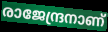
രാജേന്ദ്രനാണ്